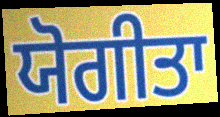
ਯੋਗੀਤਾ